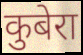
कुबेरा